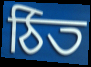
ঠিত